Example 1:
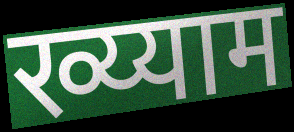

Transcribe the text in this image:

ख्य्याम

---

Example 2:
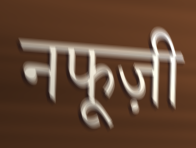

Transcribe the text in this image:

नफूज़ी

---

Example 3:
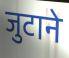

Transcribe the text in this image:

जुटाने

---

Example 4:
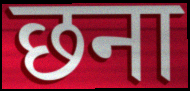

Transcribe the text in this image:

छना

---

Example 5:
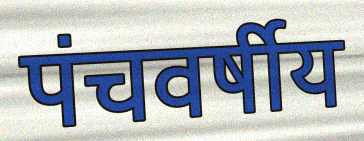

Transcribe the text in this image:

पंचवर्षीय